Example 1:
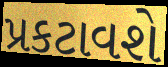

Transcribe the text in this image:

પ્રકટાવશે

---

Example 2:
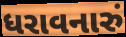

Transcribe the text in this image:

ધરાવનારું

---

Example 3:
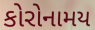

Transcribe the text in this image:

કોરોનામય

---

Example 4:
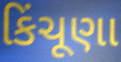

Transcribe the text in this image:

કિંચૂણા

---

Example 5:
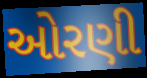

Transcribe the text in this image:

ઓરણી